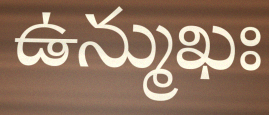
ఉన్ముఖః